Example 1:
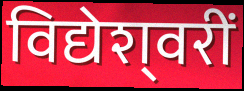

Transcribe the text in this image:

विद्येश्वरीं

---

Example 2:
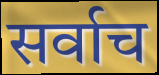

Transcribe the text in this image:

सर्वाच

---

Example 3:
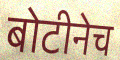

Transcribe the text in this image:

बोटीनेच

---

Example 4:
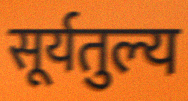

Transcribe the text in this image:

सूर्यतुल्य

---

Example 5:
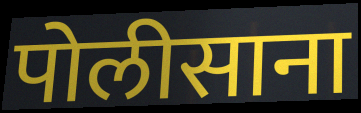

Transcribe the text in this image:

पोलीसाना